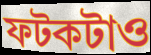
ফটকটাও